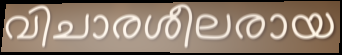
വിചാരശീലരായ